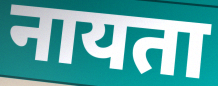
नायता